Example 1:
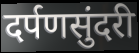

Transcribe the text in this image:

दर्पणसुंदरी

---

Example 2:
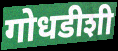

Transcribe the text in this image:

गोधडीशी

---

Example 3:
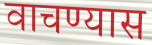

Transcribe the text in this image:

वाचण्यास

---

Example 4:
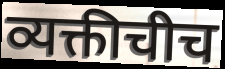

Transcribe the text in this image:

व्यक्तीचीच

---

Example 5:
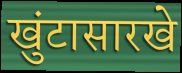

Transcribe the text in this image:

खुंटासारखे